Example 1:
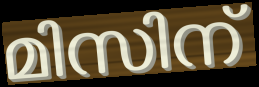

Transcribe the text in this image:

മിസിന്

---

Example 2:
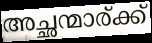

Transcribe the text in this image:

അച്ഛന്മാര്ക്ക്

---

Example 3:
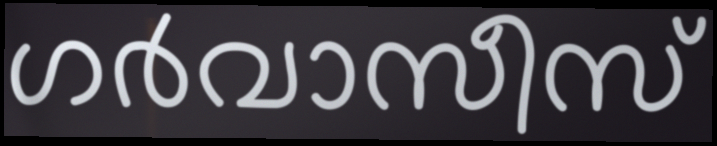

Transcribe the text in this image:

ഗർവാസീസ്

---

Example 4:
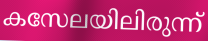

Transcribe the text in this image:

കസേലയിലിരുന്ന്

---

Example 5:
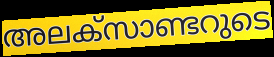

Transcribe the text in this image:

അലക്സാണ്ടറുടെ